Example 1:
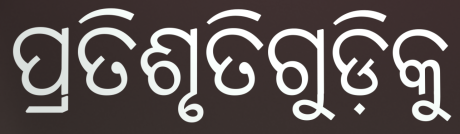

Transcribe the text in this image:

ପ୍ରତିଶୃତିଗୁଡ଼ିକୁ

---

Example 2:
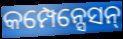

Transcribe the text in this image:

କମ୍ପେନ୍ସେସନ୍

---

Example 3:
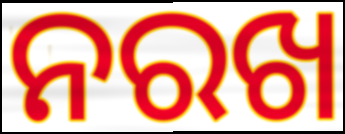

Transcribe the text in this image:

ନରଖ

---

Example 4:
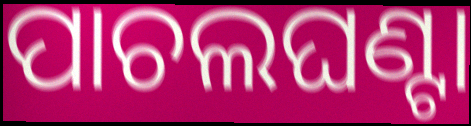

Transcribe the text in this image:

ପାଚଲଘଣ୍ଟା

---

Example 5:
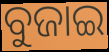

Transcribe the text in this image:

ବୁଜାଇ